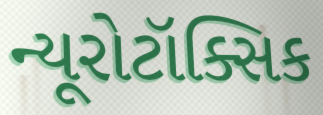
ન્યૂરોટૉક્સિક